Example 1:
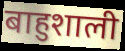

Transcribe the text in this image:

बाहुशाली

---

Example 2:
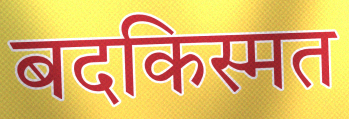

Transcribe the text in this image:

बदकिस्मत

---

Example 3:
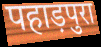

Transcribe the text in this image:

पहाड़पुरा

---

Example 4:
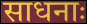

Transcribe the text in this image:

साधनाः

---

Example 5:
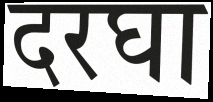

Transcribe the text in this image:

दरघा